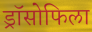
ड्रॉसोफिला